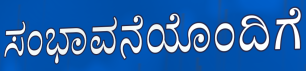
ಸಂಭಾವನೆಯೊಂದಿಗೆ